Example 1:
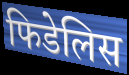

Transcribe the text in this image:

फिडेलिस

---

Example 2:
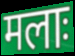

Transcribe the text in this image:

मलाः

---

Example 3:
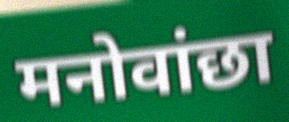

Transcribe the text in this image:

मनोवांछा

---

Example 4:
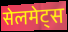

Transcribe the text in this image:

सेलमेट्स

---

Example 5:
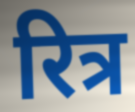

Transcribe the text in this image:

रित्र